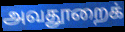
அவதூறைக்